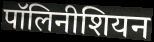
पॉलिनीशियन